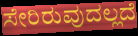
ಸೇರಿರುವುದಲ್ಲದೆ